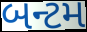
બન્ટમ